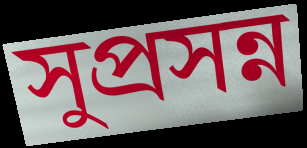
সুপ্রসন্ন